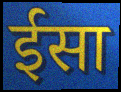
ईसा